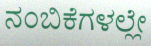
ನಂಬಿಕೆಗಳಲ್ಲೇ